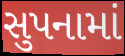
સુપનામાં